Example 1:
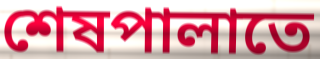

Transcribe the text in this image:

শেষপালাতে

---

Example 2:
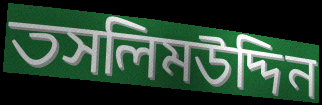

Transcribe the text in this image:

তসলিমউদ্দিন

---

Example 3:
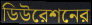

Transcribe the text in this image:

ডিউরেশনের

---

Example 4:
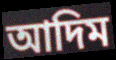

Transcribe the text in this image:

আদিম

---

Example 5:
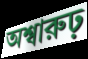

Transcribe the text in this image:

অশ্বারুঢ়